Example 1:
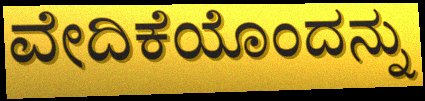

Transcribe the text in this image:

ವೇದಿಕೆಯೊಂದನ್ನು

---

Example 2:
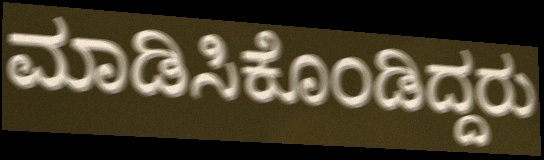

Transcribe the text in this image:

ಮಾಡಿಸಿಕೊಂಡಿದ್ದರು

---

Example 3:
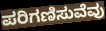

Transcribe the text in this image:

ಪರಿಗಣಿಸುವೆವು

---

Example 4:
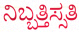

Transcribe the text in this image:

ನಿಬ್ಬತ್ತಿಸ್ಸತಿ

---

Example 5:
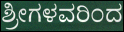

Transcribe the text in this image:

ಶ್ರೀಗಳವರಿಂದ